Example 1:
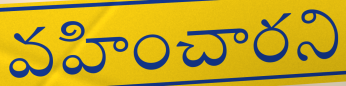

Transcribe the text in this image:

వహించారని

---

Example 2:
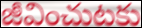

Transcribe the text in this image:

జీవించుటకు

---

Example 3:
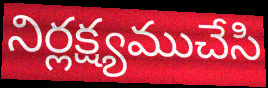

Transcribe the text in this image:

నిర్లక్ష్యముచేసి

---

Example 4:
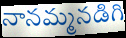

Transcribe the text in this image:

నానమ్మనడిగి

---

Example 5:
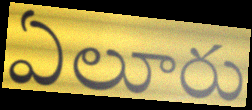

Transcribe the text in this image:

ఏలూరు